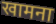
खामना